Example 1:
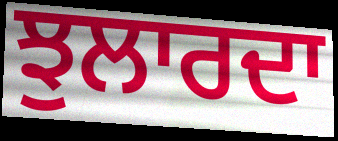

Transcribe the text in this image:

ਝੁਲਾਰਦਾ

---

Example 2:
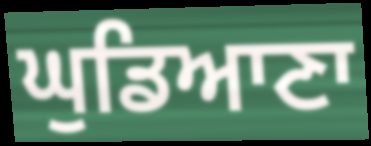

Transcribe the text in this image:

ਘੁਡਿਆਣਾ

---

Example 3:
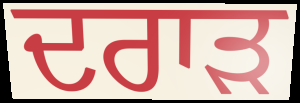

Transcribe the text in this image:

ਦਰਾੜ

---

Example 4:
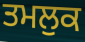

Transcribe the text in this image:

ਤਮਲੁਕ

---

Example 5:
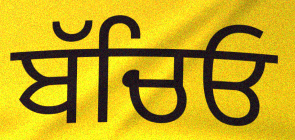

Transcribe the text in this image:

ਬੱਚਿਓ